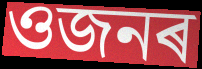
ওজনৰ